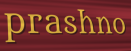
prashno